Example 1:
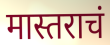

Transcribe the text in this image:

मास्तराचं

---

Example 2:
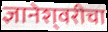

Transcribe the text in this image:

ज्ञानेश्वरीचा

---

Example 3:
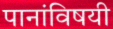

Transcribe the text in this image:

पानांविषयी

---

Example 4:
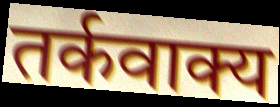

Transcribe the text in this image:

तर्कवाक्य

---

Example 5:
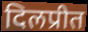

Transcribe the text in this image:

दिलप्रीत